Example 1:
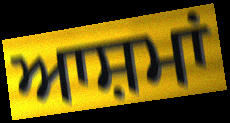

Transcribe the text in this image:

ਆਸ਼ਮਾਂ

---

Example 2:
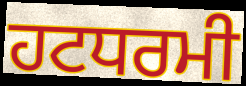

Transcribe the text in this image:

ਹਟਧਰਮੀ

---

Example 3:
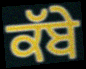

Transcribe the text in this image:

ਕੱਬੇ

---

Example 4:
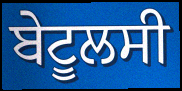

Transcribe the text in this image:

ਬੇਟੂਲਸੀ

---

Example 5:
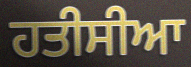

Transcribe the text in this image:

ਹਤੀਸੀਆ